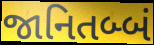
જાનિતબ્બં